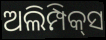
ଅଲିମ୍ପିକ୍‌ସ